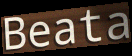
Beata